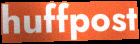
huffpost